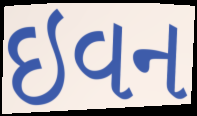
ઇવન